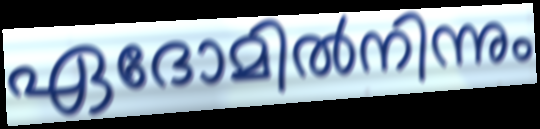
ഏദോമിൽനിന്നും